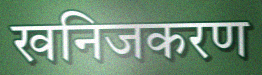
खनिजकरण